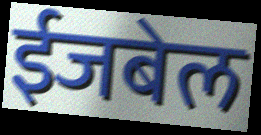
ईजबेल